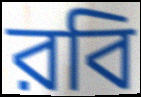
রবি